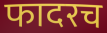
फादरच